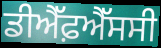
ਡੀਐੱਫ਼ਐੱਸਸੀ